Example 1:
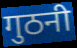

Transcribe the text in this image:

गुठनी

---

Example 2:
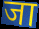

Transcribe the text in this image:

जा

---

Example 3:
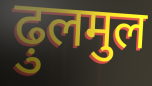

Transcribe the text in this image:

ढ़ुलमुल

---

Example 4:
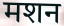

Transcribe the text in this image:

मशन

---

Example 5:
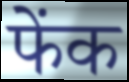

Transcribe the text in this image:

फेंक